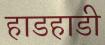
हाडहाडी